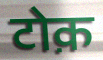
टोक़